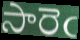
సారెఁ